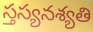
స్తస్యనశ్యతి